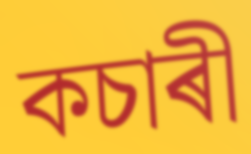
কচাৰী